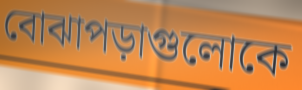
বোঝাপড়াগুলোকে